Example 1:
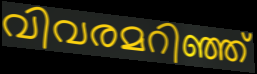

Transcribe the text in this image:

വിവരമറിഞ്ഞ്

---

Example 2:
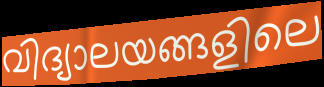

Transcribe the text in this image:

വിദ്യാലയങ്ങളിലെ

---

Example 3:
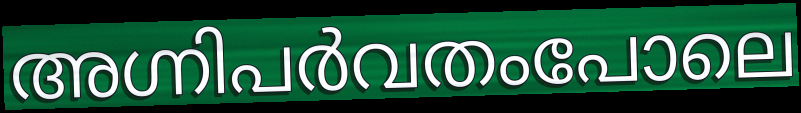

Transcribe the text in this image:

അഗ്നിപർവതംപോലെ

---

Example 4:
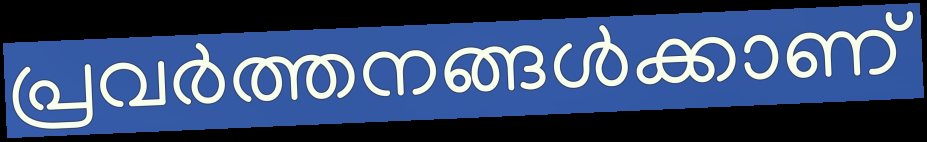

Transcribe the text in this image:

പ്രവർത്തനങ്ങൾക്കാണ്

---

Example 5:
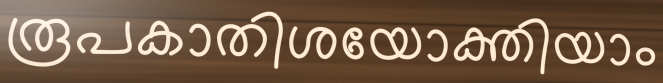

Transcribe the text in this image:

രൂപകാതിശയോക്തിയാം